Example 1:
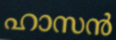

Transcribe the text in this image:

ഹാസൻ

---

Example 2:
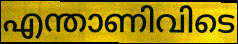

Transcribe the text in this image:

എന്താണിവിടെ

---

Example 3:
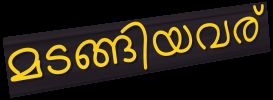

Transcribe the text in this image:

മടങ്ങിയവര്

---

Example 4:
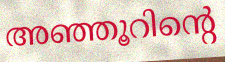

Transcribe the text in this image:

അഞ്ഞൂറിന്റെ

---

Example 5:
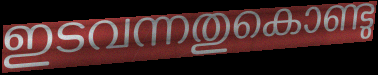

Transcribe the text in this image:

ഇടവന്നതുകൊണ്ടു